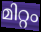
മിറ്റം